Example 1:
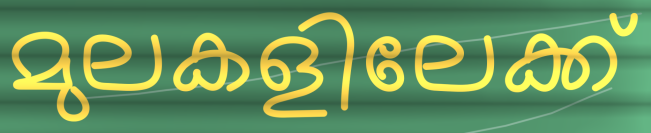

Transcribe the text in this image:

മുലകളിലേക്ക്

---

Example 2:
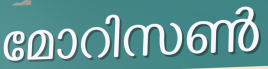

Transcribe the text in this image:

മോറിസൺ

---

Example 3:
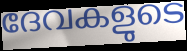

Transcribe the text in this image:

ദേവകളുടെ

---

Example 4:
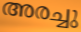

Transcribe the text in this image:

അരച്ചു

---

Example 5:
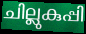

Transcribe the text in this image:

ചില്ലുകുപ്പി